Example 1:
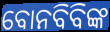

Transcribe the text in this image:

ବୋନବିବିଙ୍କ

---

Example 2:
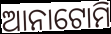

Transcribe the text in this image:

ଆନାଟୋମି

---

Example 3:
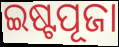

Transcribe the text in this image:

ଇଷ୍ଟପୂଜା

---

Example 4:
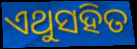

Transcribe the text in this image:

ଏଥୁସହିତ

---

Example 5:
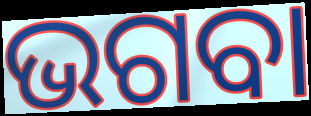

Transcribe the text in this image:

ଭଗବା